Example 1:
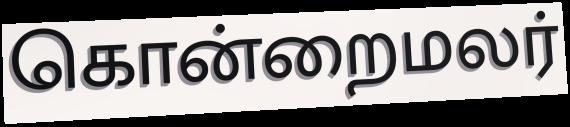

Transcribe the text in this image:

கொன்றைமலர்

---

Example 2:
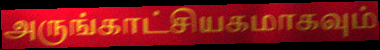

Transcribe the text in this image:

அருங்காட்சியகமாகவும்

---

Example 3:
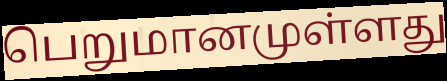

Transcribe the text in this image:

பெறுமானமுள்ளது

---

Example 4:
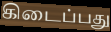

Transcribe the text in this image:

கிடைப்பது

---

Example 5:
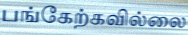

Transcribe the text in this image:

பங்கேற்கவில்லை